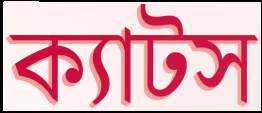
ক্যাটস